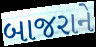
બાજરાને